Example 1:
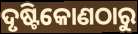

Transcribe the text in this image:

ଦୃଷ୍ଟିକୋଣଠାରୁ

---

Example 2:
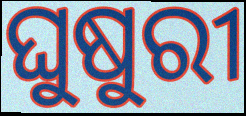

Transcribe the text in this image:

ଘୁଷୁରୀ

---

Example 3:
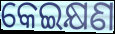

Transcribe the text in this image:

କେଇକ୍ଷଣ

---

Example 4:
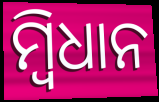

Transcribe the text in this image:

ମ୍ବିଧାନ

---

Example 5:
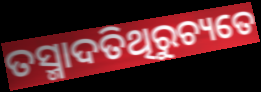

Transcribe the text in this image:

ତସ୍ମାଦତିଥିରୁଚ୍ୟତେ